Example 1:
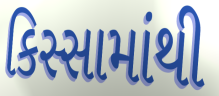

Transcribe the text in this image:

કિસ્સામાંથી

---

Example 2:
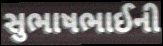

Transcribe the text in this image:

સુભાષભાઈની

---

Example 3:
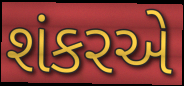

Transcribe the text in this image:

શંકરએ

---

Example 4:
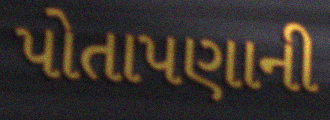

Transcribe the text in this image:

પોતાપણાની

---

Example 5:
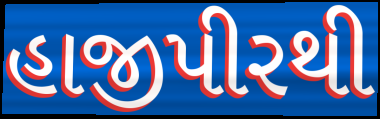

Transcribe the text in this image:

હાજીપીરથી